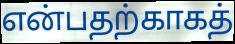
என்பதற்காகத்